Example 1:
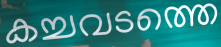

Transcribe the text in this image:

കച്ചവടത്തെ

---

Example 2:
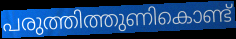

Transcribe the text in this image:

പരുത്തിത്തുണികൊണ്ട്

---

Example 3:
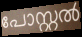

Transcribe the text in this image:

പോസ്റ്റൽ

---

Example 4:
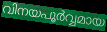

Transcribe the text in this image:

വിനയപൂർവ്വമായ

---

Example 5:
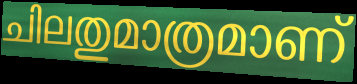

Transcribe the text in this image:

ചിലതുമാത്രമാണ്